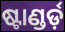
ଷ୍ଟାଣ୍ଡର୍ଡ଼